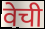
वेची